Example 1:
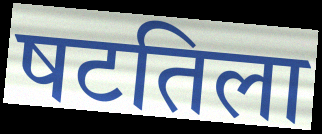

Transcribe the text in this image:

षटतिला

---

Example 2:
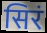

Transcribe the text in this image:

सिरं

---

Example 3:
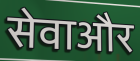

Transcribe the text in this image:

सेवाऔर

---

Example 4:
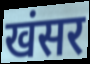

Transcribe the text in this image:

खंसर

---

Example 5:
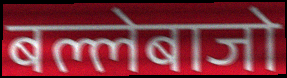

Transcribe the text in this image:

बल्लेबाजो